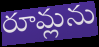
రూమ్లను